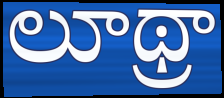
లూథ్రా